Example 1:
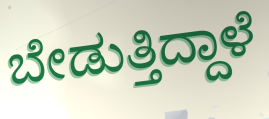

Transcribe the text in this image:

ಬೇಡುತ್ತಿದ್ದಾಳೆ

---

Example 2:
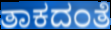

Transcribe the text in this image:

ತಾಕದಂತೆ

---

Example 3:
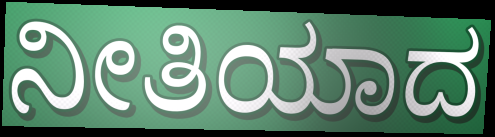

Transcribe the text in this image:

ನೀತಿಯಾದ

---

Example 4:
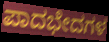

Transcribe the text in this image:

ಪಾದಭೇದಗಳ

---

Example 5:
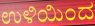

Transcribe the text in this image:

ಉಳಿಯಿಂದ